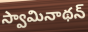
స్వామినాథన్